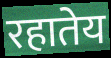
रहातेय